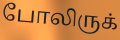
போலிருக்